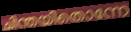
ചിന്തയിതൊന്നേ